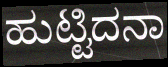
ಹುಟ್ಟಿದನಾ